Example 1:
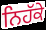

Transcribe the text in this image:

ਨਿਹੱਕੇ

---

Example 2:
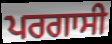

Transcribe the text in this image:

ਪਰਗਾਸੀ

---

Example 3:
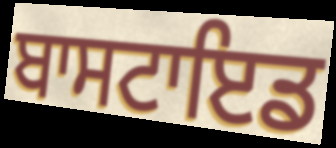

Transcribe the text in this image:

ਬਾਸਟਾਇਡ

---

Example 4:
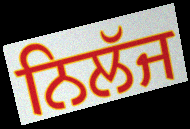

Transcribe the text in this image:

ਨਿਲੱਜ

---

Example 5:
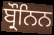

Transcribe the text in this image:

ਬ੍ਰੌਨਿਨ